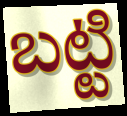
బట్టి